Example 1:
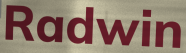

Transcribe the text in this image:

Radwin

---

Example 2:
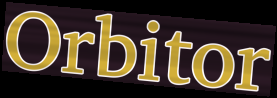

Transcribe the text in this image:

Orbitor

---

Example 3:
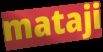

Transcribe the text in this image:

mataji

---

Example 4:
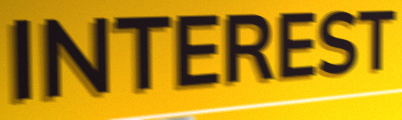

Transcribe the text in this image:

INTEREST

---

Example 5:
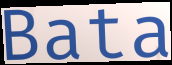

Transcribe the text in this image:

Bata